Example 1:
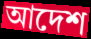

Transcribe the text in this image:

আদেশ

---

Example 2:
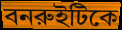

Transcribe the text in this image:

বনরুইটিকে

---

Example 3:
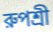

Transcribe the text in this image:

রুপশ্রী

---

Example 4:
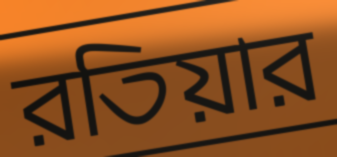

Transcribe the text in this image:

রতিয়ার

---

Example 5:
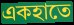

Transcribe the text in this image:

একহাতে